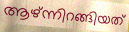
ആഴ്ന്നിറങ്ങിയത്